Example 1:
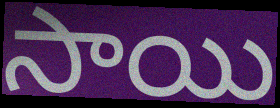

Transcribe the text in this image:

సాయి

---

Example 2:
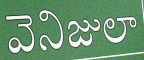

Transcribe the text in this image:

వెనిజులా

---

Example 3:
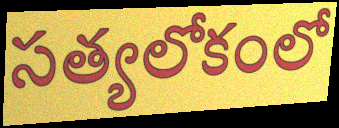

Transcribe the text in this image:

సత్యలోకంలో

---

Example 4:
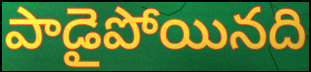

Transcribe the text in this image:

పాడైపోయినది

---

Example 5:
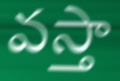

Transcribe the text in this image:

వస్తా